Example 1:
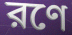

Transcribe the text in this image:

রণে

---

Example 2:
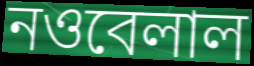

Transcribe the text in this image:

নওবেলাল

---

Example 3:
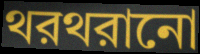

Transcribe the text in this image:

থরথরানো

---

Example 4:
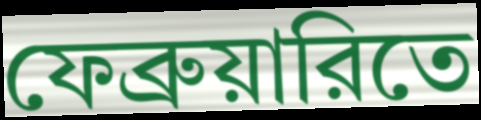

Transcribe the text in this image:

ফেব্রুয়ারিতে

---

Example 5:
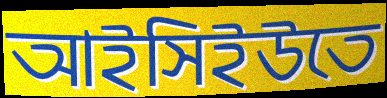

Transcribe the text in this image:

আইসিইউতে